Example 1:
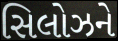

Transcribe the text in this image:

સિલોઝને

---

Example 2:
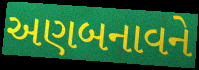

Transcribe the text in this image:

અણબનાવને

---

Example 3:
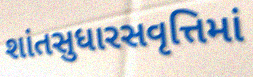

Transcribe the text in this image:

શાંતસુધારસવૃત્તિમાં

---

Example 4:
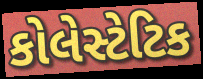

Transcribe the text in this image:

કોલેસ્ટેટિક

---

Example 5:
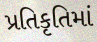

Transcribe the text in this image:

પ્રતિકૃતિમાં